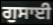
ਗੁਸਾਈ